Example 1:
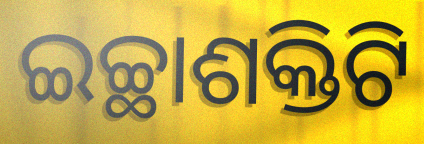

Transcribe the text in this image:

ଇଚ୍ଛାଶକ୍ତିଟି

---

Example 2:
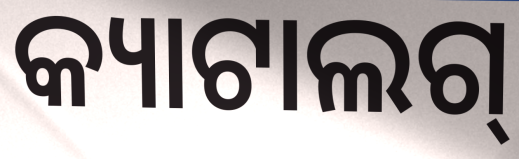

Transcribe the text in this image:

କ୍ୟାଟାଲଗ୍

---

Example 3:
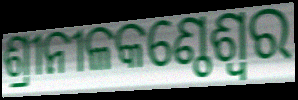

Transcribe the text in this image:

ଶ୍ରୀନୀଳକଣ୍ଠେଶ୍ଵର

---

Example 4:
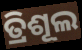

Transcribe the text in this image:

ତ୍ରିଶୂଲ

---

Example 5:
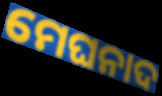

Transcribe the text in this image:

ମେଘନାଦ